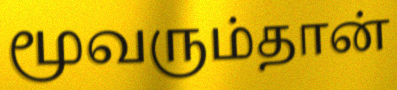
மூவரும்தான்